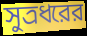
সুত্রধরের